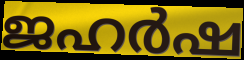
ജഹർഷ